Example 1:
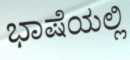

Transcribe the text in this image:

ಭಾಷೆಯಲ್ಲಿ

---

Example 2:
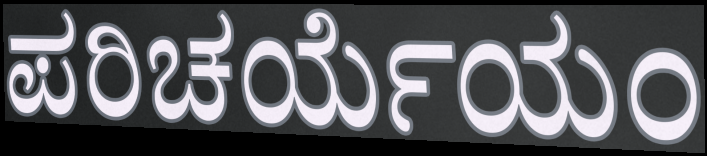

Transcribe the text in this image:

ಪರಿಚರ್ಯೆಯಂ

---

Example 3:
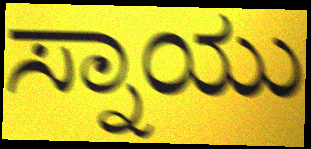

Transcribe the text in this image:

ಸ್ನಾಯು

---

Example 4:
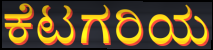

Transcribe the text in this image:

ಕೆಟಗರಿಯ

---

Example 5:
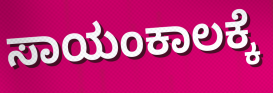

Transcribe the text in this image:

ಸಾಯಂಕಾಲಕ್ಕೆ